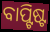
ବାପ୍ଟିଷ୍ଟ